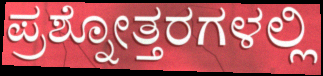
ಪ್ರಶ್ನೋತ್ತರಗಳಲ್ಲಿ